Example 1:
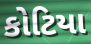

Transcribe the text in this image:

કોટિયા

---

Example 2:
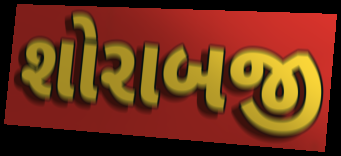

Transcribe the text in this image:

શોરાબજી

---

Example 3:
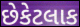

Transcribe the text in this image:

છેકેટલાક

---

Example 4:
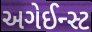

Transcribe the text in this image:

અગેઈન્સ્ટ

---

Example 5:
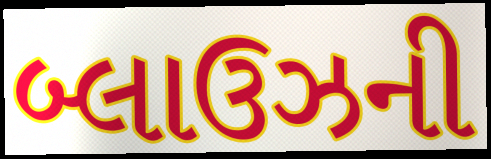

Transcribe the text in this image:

બ્લાઉઝની